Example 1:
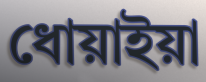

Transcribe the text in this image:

ধোয়াইয়া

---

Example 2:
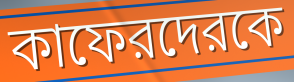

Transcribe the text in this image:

কাফেরদেরকে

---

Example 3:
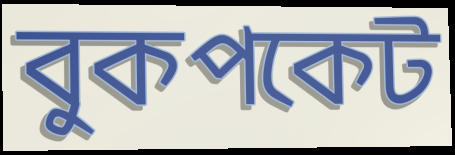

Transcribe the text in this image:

বুকপকেট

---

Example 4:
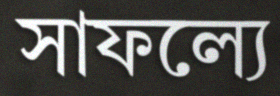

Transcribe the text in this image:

সাফল্যে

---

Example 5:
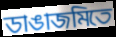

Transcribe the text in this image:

ডাঙাজমিতে